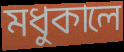
মধুকালে